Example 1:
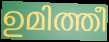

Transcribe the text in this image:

ഉമിത്തീ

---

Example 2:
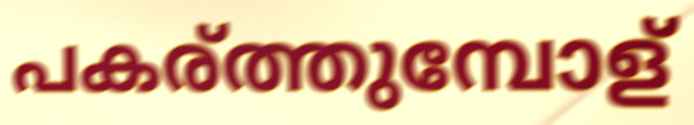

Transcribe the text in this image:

പകര്ത്തുമ്പോള്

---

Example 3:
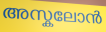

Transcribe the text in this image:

അസ്കലോൻ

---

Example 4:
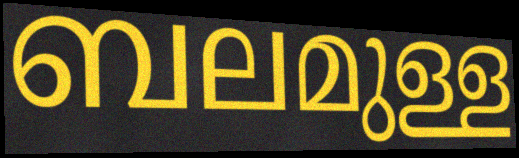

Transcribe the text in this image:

ബലമുള്ള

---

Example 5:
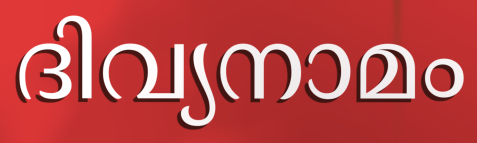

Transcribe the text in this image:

ദിവ്യനാമം